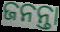
ଜନନ୍ତା